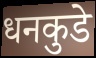
धनकुडे